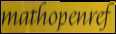
mathopenref